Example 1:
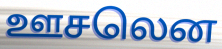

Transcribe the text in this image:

ஊசலென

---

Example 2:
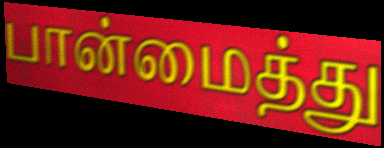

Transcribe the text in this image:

பான்மைத்து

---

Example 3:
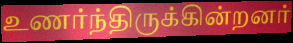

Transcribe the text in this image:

உணர்ந்திருக்கின்றனர்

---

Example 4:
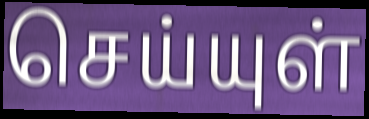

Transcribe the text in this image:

செய்யுள்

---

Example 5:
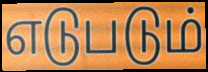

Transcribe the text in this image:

எடுபடும்